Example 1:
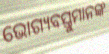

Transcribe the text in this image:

ଭୋଗ୍ୟବସ୍ତୁମାନଙ୍କ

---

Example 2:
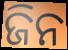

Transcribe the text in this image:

ଜିନ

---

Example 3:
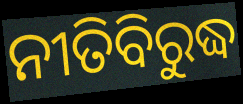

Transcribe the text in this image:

ନୀତିବିରୁଦ୍ଧ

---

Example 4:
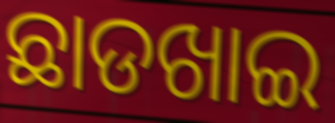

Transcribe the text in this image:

ଛାଡଖାଇ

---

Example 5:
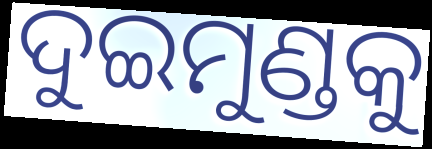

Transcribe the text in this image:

ଦୁଇମୁଣ୍ଡକୁ